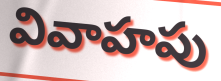
వివాహపు